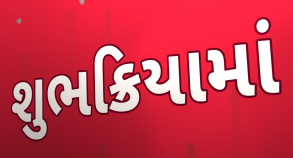
શુભક્રિયામાં